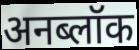
अनब्लॉक